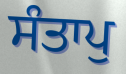
ਸੰਤਾਪੁ